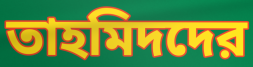
তাহমিদদের